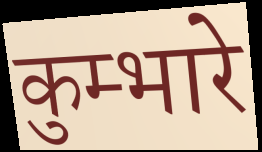
कुम्भारे